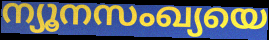
ന്യൂനസംഖ്യയെ